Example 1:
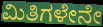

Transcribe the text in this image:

ಮಿತಿಗಳೇನೇ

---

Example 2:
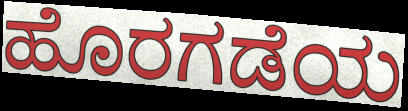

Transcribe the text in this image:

ಹೊರಗಡೆಯ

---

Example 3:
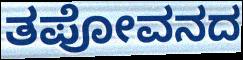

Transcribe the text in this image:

ತಪೋವನದ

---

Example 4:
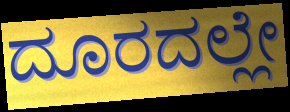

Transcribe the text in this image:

ದೂರದಲ್ಲೇ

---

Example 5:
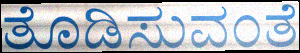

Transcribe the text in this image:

ತೊಡಿಸುವಂತೆ